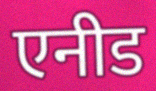
एनीड